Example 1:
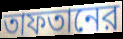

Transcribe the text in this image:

তাফতানের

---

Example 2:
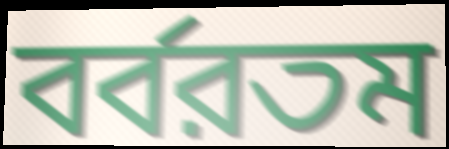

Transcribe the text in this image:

বর্বরতম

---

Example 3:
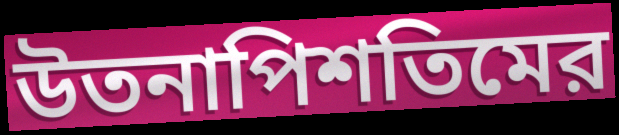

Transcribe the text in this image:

উতনাপিশতিমের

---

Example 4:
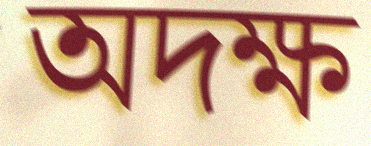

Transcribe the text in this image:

অদক্ষ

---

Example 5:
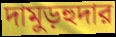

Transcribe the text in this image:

দামুড়হুদার